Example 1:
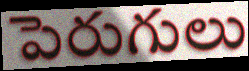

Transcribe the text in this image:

పెరుగులు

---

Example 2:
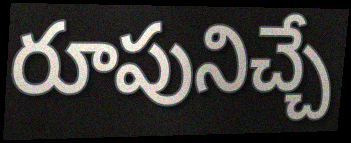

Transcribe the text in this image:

రూపునిచ్చే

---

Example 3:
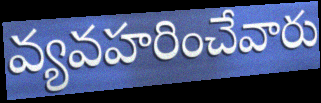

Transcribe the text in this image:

వ్యవహరించేవారు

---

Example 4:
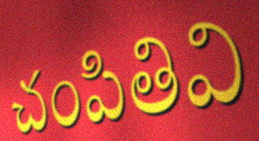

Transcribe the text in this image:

చంపితివి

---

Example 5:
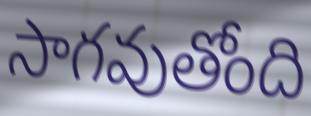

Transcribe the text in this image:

సాగవుతోంది